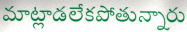
మాట్లాడలేకపోతున్నారు